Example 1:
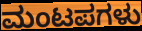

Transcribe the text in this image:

ಮಂಟಪಗಳು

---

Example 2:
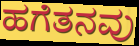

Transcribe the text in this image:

ಹಗೆತನವು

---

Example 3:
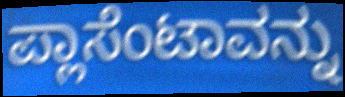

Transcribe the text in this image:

ಪ್ಲಾಸೆಂಟಾವನ್ನು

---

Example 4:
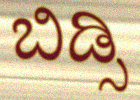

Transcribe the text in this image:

ಬಿಡ್ಸಿ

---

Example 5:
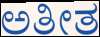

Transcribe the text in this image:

ಅತೀತ